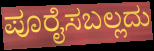
ಪೂರೈಸಬಲ್ಲದು